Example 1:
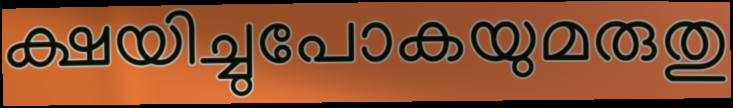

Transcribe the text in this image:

ക്ഷയിച്ചുപോകയുമരുതു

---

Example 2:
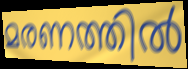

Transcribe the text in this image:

മരണത്തിൽ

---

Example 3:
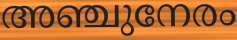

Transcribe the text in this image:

അഞ്ചുനേരം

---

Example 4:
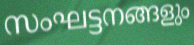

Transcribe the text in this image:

സംഘട്ടനങ്ങളും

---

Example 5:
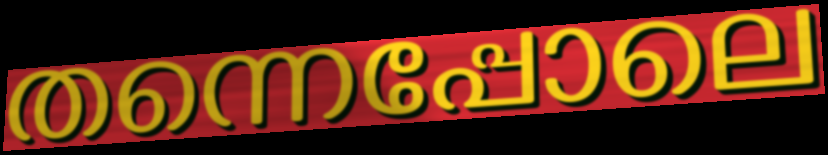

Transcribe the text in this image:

തന്നെപ്പോലെ